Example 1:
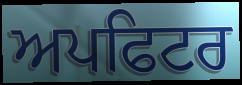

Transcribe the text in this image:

ਅਪਫਿਟਰ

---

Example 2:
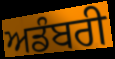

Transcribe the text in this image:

ਅਡੰਬਰੀ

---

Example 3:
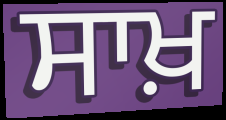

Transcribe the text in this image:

ਸਾਖ਼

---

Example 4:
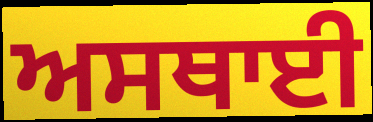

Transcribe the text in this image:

ਅਸਥਾਈ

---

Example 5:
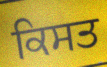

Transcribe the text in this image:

ਕਿਸਤ